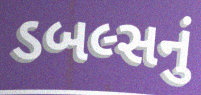
ડબલ્સનું